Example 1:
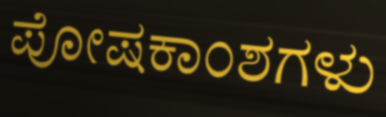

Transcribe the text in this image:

ಪೋಷಕಾಂಶಗಳು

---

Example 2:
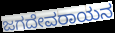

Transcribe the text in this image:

ಜಗದೇವರಾಯನ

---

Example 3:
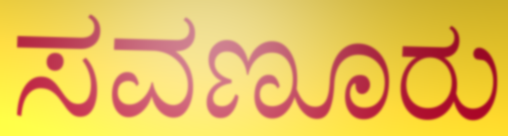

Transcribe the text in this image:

ಸವಣೂರು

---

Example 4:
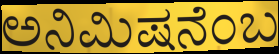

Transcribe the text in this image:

ಅನಿಮಿಷನೆಂಬ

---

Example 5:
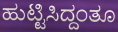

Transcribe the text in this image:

ಹುಟ್ಟಿಸಿದ್ದಂತೂ